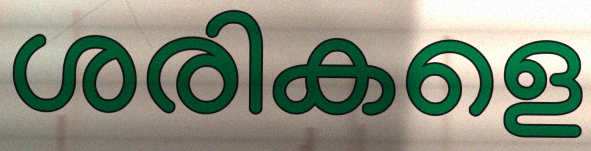
ശരികളെ